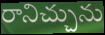
రానిచ్చును